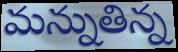
మన్నుతిన్న